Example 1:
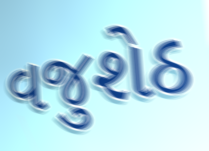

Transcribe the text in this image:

વજુશેઠ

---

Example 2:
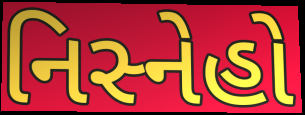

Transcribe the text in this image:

નિસ્નેહો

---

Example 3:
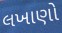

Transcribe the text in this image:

લખાણો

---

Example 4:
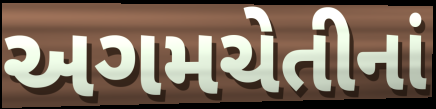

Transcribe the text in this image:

અગમચેતીનાં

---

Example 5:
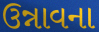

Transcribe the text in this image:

ઉન્નાવના